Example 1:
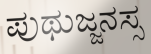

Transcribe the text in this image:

ಪುಥುಜ್ಜನಸ್ಸ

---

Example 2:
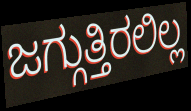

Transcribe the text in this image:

ಜಗ್ಗುತ್ತಿರಲಿಲ್ಲ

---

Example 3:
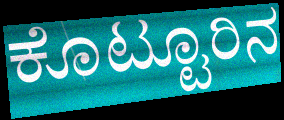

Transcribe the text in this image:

ಕೊಟ್ಟೂರಿನ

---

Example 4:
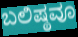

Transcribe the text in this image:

ಬಲಿಷ್ಠವೂ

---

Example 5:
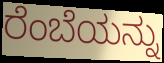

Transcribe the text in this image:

ರೆಂಬೆಯನ್ನು